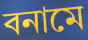
বনামে